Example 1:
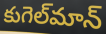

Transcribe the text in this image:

కుగెల్‌మాన్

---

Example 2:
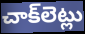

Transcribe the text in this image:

చాక్‌లెట్లు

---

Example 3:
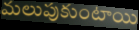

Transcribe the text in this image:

మలుపుకుంటాయి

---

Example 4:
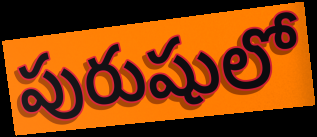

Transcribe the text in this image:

పురుషులో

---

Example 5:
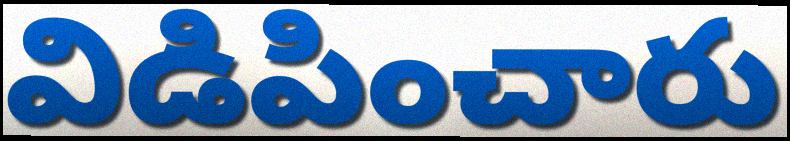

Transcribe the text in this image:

విడిపించారు